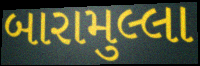
બારામુલ્લા